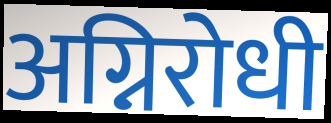
अग्निरोधी